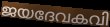
ജയദേവകവി